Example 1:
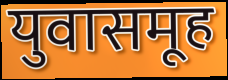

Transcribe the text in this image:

युवासमूह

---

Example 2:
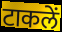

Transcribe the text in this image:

टाकलें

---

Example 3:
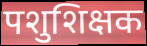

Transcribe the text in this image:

पशुशिक्षक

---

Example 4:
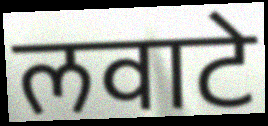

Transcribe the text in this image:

लवाटे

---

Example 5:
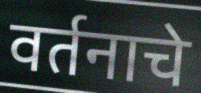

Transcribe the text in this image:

वर्तनाचे